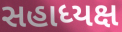
સહાધ્યક્ષ